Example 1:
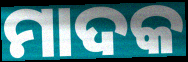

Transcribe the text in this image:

ମାଦକ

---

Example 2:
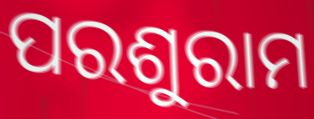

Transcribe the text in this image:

ପରଶୁରାମ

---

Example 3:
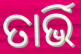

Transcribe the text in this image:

ତାର୍ଭି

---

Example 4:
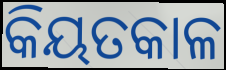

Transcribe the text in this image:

କିୟତକାଳ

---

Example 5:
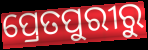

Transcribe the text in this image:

ପ୍ରେତପୁରୀରୁ